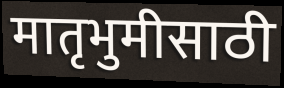
मातृभुमीसाठी